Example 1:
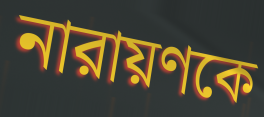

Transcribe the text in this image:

নারায়ণকে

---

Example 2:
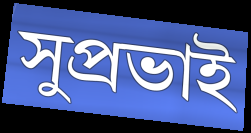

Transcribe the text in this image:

সুপ্রভাই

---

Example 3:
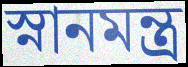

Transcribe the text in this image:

স্নানমন্ত্র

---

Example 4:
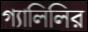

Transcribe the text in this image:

গ্যালিলির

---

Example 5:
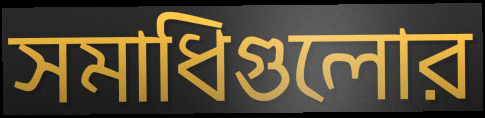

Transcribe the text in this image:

সমাধিগুলোর